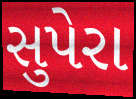
સુપેરા